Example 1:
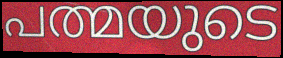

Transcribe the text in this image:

പത്മയുടെ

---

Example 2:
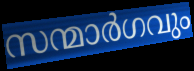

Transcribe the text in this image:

സന്മാർഗവും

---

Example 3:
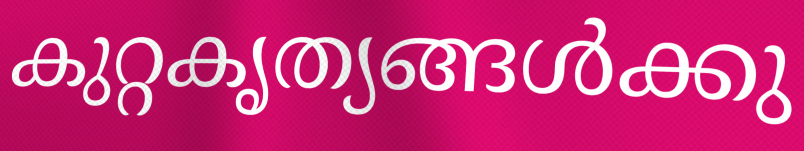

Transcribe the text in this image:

കുറ്റകൃത്യങ്ങൾക്കു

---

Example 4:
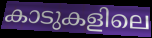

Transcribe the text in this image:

കാടുകളിലെ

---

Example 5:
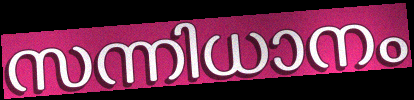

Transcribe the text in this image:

സന്നിധാനം